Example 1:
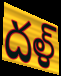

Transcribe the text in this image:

దళ్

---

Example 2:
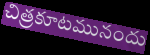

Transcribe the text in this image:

చిత్రకూటమునందు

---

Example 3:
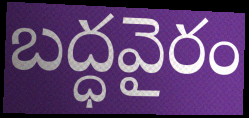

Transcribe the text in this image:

బద్ధవైరం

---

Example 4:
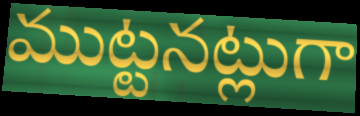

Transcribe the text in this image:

ముట్టనట్లుగా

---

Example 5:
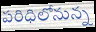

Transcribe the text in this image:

పరిధిలోనున్న